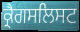
ਕ੍ਰੈਗਸਲਿਸਟ